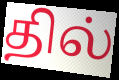
தில்